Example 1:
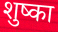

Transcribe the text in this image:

शुष्का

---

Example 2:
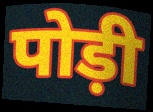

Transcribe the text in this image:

पोड़ी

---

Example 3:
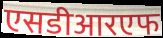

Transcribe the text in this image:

एसडीआरएफ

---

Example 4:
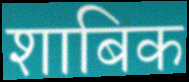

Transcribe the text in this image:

शाबिक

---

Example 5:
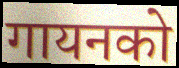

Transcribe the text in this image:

गायनको